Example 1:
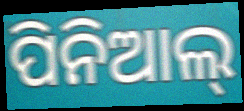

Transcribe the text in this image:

ପିନିଆଲ୍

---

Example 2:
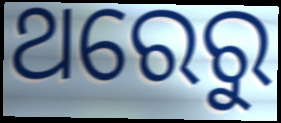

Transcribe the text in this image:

ଥରେରୁ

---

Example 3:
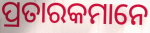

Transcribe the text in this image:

ପ୍ରତାରକମାନେ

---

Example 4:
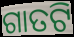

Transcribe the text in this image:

ଗାତଟି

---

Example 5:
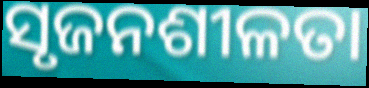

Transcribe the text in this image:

ସୃଜନଶୀଳତା